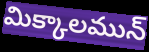
మిక్కాలమున్